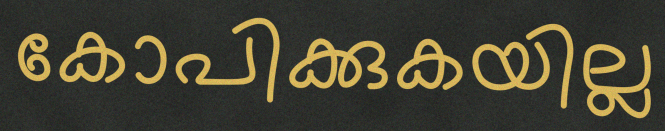
കോപിക്കുകയില്ല